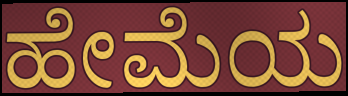
ಹೇಮೆಯ